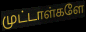
முட்டாள்களே